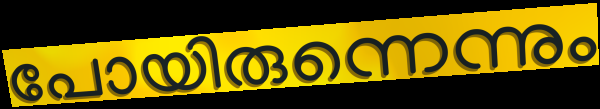
പോയിരുന്നെന്നും